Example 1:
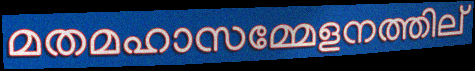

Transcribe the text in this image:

മതമഹാസമ്മേളനത്തില്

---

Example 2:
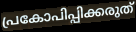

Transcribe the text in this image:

പ്രകോപിപ്പിക്കരുത്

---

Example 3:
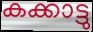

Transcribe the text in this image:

കക്കാട്ടു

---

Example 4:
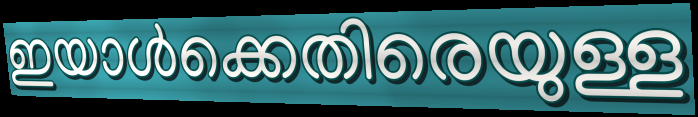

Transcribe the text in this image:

ഇയാൾക്കെതിരെയുള്ള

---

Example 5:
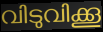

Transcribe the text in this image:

വിടുവിക്കൂ